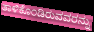
ತಾಳಿಕೊಂಡಿರುವವರನ್ನು